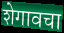
शेगावचा